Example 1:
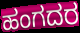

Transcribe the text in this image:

ಹಂಗದರ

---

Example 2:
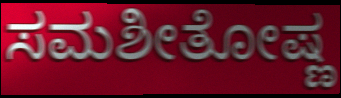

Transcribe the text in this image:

ಸಮಶೀತೋಷ್ಣ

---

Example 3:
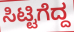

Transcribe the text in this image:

ಸಿಟ್ಟಿಗೆದ್ದ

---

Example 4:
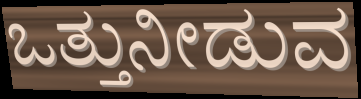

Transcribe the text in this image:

ಒತ್ತುನೀಡುವ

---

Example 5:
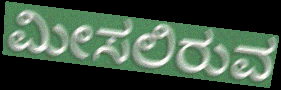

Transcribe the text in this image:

ಮೀಸಲಿರುವ